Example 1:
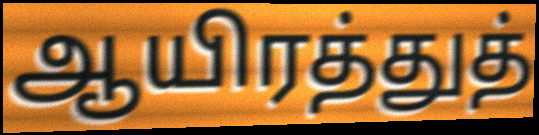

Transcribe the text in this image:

ஆயிரத்துத்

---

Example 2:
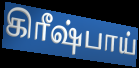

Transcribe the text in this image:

கிரீஷ்பாய்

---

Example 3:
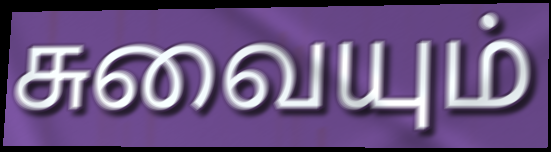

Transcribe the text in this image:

சுவையும்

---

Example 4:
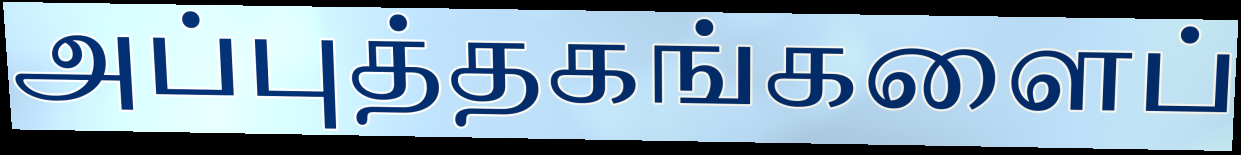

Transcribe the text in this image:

அப்புத்தகங்களைப்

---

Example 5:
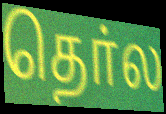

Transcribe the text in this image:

தெர்ல